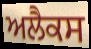
ਅਲੈਕਸ